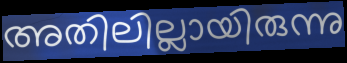
അതിലില്ലായിരുന്നു